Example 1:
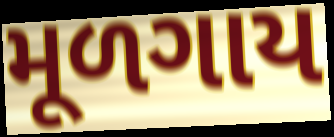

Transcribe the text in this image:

મૂળગાય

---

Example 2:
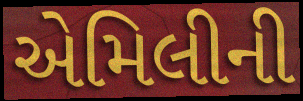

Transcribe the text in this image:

એમિલીની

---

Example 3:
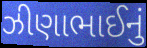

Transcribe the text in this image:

ઝીણાભાઈનું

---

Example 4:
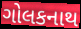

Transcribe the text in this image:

ગોલકનાથ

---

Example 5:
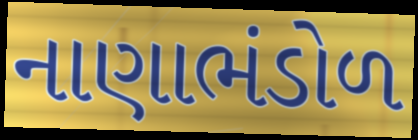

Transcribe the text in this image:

નાણાભંડોળ